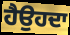
ਹੈਉਹਦਾ